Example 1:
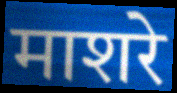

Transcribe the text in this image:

माशरे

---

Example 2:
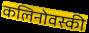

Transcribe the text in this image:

कलिनोवस्की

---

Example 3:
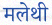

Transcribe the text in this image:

मलेथी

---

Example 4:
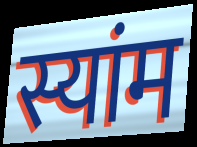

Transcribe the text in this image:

स्यांम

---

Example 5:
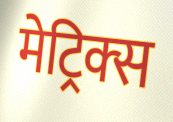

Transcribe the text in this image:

मेट्रिक्‍स